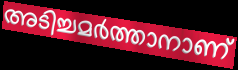
അടിച്ചമർത്താനാണ്